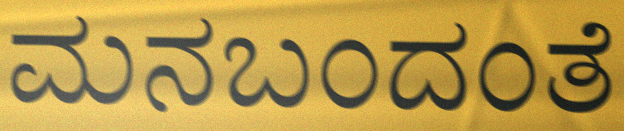
ಮನಬಂದಂತೆ